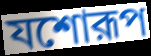
যশোরূপ